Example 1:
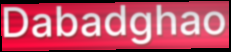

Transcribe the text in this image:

Dabadghao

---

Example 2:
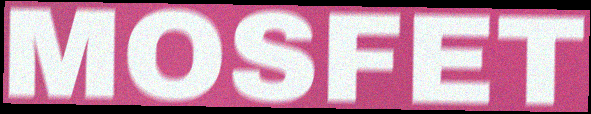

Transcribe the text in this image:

MOSFET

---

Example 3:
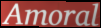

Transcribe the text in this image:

Amoral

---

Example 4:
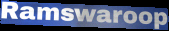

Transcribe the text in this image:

Ramswaroop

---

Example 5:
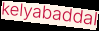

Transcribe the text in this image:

kelyabaddal